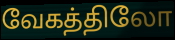
வேகத்திலோ